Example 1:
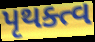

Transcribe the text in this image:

પૃથક્ત્વ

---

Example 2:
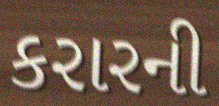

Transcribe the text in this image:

કરારની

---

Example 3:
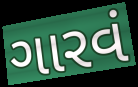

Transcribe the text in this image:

ગારવં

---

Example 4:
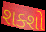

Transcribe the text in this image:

શક્શો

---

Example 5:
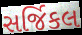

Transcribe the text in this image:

સર્જિકલ